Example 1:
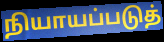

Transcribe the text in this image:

நியாயப்படுத்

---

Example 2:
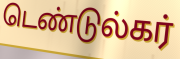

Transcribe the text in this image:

டெண்டுல்கர்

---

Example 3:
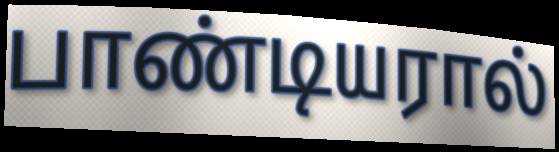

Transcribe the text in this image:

பாண்டியரால்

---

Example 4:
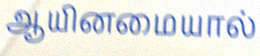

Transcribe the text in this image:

ஆயினமையால்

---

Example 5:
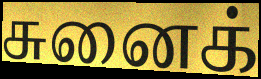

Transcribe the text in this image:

சுனைக்